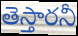
తెస్తారనీ